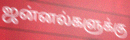
ஜன்னல்களுக்கு